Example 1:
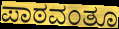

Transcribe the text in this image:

ಪಾಠವಂತೂ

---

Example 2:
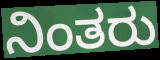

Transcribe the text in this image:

ನಿಂತರು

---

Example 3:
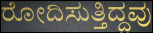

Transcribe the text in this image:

ರೋದಿಸುತ್ತಿದ್ದವು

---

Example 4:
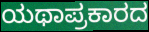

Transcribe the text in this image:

ಯಥಾಪ್ರಕಾರದ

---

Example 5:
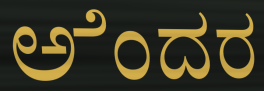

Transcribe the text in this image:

ಅೆಂದರ